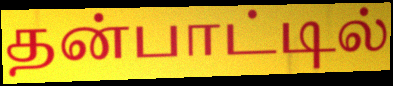
தன்பாட்டில்